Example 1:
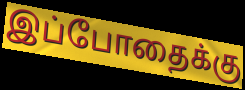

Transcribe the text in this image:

இப்போதைக்கு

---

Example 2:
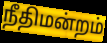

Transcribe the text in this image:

நீதிமன்றம்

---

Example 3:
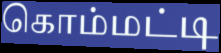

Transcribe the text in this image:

கொம்மட்டி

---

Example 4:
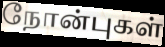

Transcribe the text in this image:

நோன்புகள்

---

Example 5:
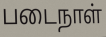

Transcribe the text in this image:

படைநாள்